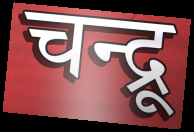
चन्द्रू